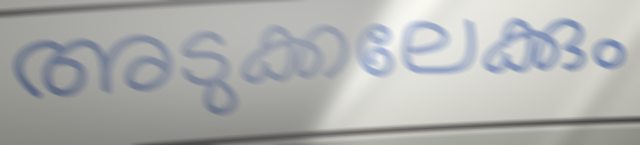
അടുക്കലേക്കും